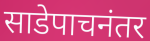
साडेपाचनंतर